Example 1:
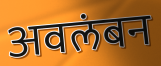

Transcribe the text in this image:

अवलंबन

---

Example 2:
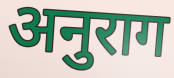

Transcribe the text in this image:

अनुराग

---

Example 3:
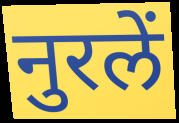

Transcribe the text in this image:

नुरलें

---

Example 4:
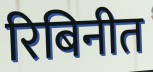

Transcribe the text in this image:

रिबिनीत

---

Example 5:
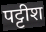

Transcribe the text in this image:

पट्टीश